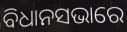
ବିଧାନସଭାରେ